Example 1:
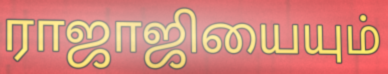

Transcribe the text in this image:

ராஜாஜியையும்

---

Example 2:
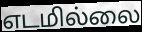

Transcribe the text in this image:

எடமில்லை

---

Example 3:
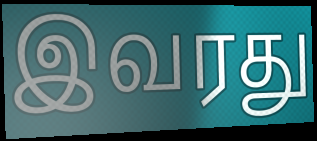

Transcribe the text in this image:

இவரது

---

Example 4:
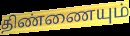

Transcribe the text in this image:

திண்ணையும்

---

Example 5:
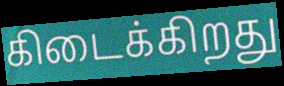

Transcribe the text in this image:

கிடைக்கிறது